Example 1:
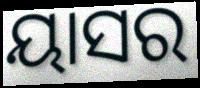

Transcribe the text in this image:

ୟାସର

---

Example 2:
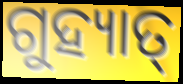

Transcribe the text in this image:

ଗୁହ୍ୟାତ୍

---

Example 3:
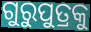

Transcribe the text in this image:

ଗୁରୁପୁତ୍ରକୁ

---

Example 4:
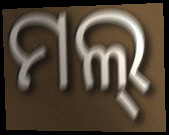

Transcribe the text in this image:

ମଲ୍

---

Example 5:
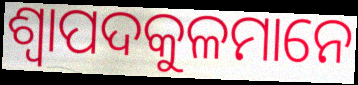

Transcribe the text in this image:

ଶ୍ୱାପଦକୁଳମାନେ